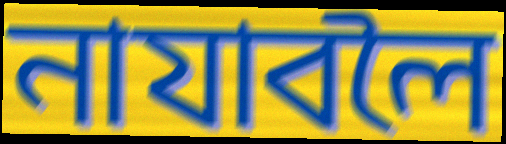
নাযাবলৈ